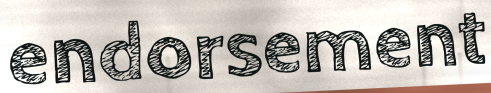
endorsement